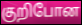
குறிபோன